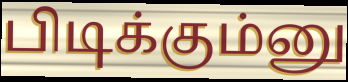
பிடிக்கும்னு